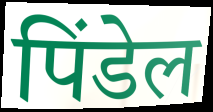
पिंडेल